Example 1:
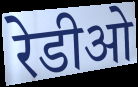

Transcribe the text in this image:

रेडीओ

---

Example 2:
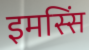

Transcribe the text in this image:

इमस्सिं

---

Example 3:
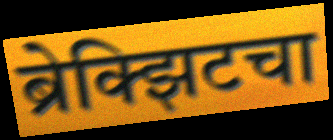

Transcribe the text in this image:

ब्रेक्झिटचा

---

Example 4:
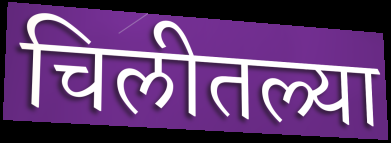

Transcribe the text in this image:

चिलीतल्या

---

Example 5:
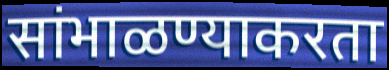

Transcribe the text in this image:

सांभाळण्याकरता